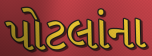
પોટલાંના